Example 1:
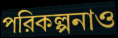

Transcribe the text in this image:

পরিকল্পনাও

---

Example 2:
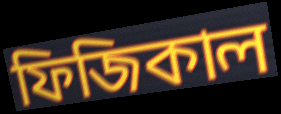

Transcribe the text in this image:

ফিজিকাল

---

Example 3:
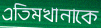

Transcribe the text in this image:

এতিমখানাকে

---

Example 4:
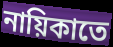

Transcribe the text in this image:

নায়িকাতে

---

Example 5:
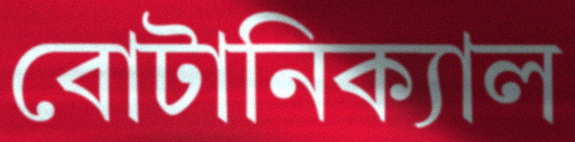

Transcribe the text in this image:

বোটানিক্যাল